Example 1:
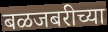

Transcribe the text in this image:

बळजबरीच्या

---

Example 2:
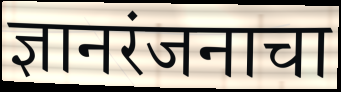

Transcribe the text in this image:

ज्ञानरंजनाचा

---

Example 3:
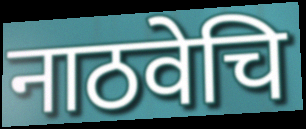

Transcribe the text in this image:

नाठवेचि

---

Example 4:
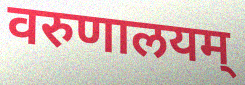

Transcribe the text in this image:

वरुणालयम्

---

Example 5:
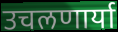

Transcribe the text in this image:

उचलणार्या